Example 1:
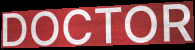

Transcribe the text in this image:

DOCTOR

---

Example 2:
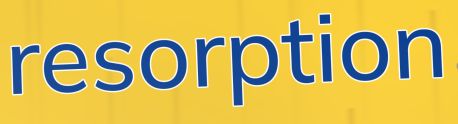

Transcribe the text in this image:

resorption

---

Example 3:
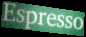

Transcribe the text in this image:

Espresso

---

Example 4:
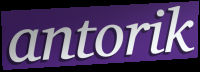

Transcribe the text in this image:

antorik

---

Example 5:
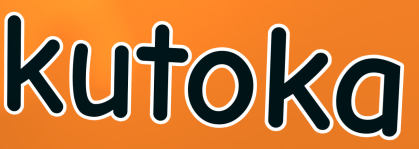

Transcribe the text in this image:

kutoka